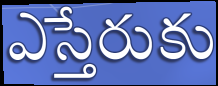
ఎస్తేరుకు